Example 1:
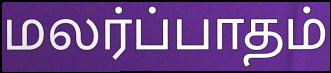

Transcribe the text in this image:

மலர்ப்பாதம்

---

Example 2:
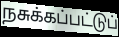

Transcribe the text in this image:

நசுக்கப்பட்டுப்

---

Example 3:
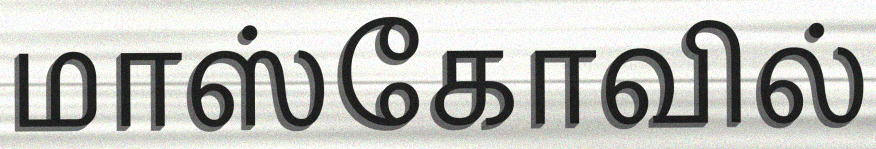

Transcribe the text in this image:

மாஸ்கோவில்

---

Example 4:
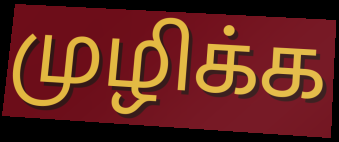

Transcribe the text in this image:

முழிக்க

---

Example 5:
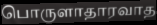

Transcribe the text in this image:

பொருளாதாரவாத